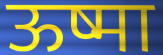
ऊष्मा